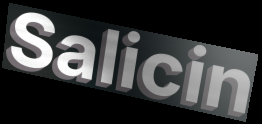
Salicin